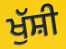
ਖੁੱਸ਼ੀ